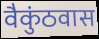
वैकुंठवास